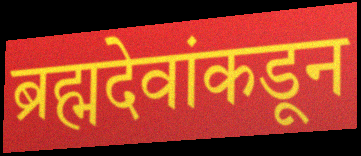
ब्रह्मदेवांकडून